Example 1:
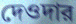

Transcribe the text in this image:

দেওদার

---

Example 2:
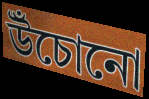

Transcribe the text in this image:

উঁচোনো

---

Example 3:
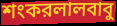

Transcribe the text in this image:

শংকরলালবাবু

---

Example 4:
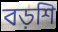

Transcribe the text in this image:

বড়শি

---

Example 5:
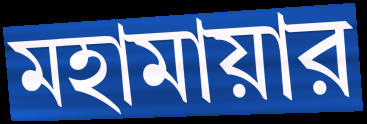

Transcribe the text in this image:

মহামায়ার